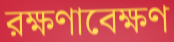
রক্ষণাবেক্ষণ